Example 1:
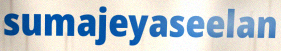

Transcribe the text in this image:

sumajeyaseelan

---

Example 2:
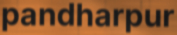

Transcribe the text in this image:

pandharpur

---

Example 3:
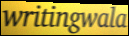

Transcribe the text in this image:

writingwala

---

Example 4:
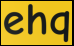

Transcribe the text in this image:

ehq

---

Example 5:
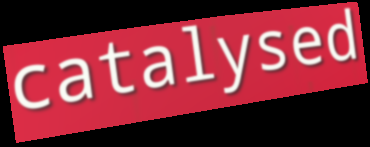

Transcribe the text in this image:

catalysed